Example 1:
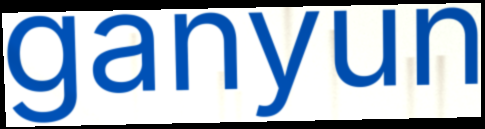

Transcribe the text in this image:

ganyun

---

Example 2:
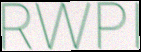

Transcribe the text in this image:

RWPI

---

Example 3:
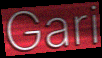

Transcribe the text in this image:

Gari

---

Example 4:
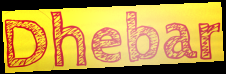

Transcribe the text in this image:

Dhebar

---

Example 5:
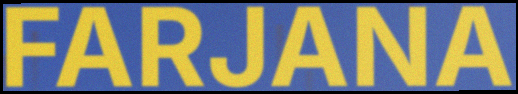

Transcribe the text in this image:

FARJANA